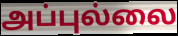
அப்புல்லை